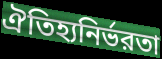
ঐতিহ্যনির্ভরতা